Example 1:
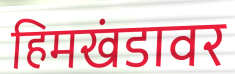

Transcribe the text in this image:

हिमखंडावर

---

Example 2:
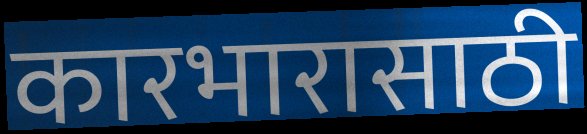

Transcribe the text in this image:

कारभारासाठी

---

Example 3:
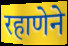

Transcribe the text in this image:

रहाणेने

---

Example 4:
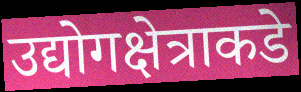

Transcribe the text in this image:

उद्योगक्षेत्राकडे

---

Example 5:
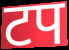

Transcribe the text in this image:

टप